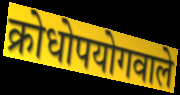
क्रोधोपयोगवाले